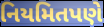
નિયમિતપણે